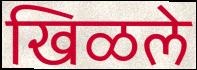
खिळले